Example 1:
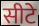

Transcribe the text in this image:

सीटे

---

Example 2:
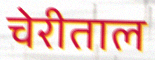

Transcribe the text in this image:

चेरीताल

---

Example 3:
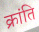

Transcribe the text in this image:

क्रांति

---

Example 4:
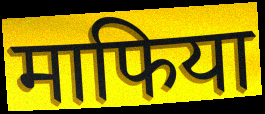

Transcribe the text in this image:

माफिया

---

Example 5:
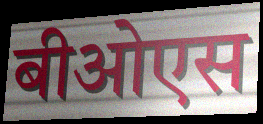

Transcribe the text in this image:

बीओएस